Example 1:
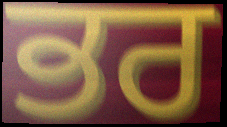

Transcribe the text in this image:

ਭਰ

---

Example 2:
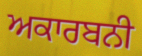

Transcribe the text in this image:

ਅਕਾਰਬਨੀ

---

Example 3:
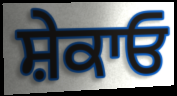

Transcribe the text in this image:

ਸ਼ੇਕਾਓ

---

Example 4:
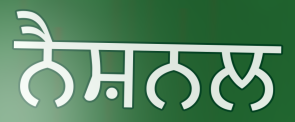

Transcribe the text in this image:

ਨੈਸ਼ਨਲ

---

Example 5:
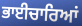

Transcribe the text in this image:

ਭਾਈਚਾਰਿਆਂ